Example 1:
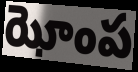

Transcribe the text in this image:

ఝోంప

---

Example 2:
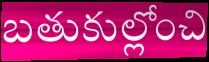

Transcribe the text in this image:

బతుకుల్లోంచి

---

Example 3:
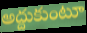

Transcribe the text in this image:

అద్దుకుంటూ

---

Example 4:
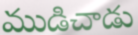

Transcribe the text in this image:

ముడిచాడు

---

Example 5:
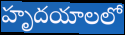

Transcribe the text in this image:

హృదయాలలో